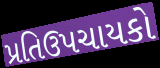
પ્રતિઉપચાયકો